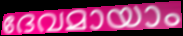
ദേവമായാം